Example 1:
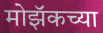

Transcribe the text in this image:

मोझॅकच्या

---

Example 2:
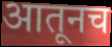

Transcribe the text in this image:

आतूनच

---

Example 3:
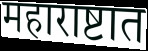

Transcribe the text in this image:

महाराष्टात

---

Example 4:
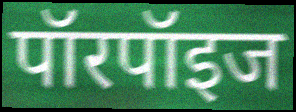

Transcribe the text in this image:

पॉरपॉइज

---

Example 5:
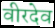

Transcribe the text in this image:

वीरदेव